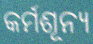
କର୍ମଶୂନ୍ୟ